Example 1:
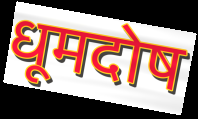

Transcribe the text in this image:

धूमदोष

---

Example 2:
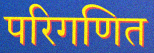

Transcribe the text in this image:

परिगणित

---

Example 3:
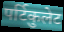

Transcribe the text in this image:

पर्टिकुलेट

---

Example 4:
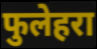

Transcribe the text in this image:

फुलेहरा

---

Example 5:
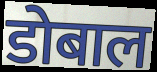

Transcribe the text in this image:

डोबाल